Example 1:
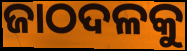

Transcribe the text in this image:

ଜାଠଦଳକୁ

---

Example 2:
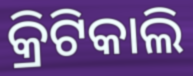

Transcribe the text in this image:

କ୍ରିଟିକାଲି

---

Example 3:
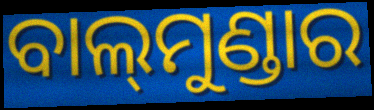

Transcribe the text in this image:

ବାଲ୍‍ମୁଣ୍ଡାର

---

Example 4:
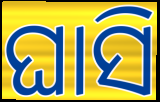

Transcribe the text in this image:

ଘାସି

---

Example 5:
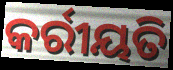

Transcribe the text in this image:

କର୍ରୀୟତି